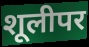
शूलीपर